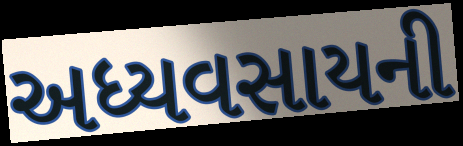
અધ્યવસાયની